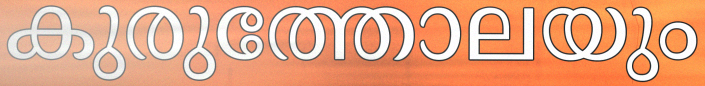
കുരുത്തോലയും